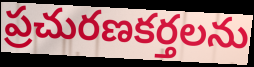
ప్రచురణకర్తలను